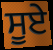
ਸੂਏ